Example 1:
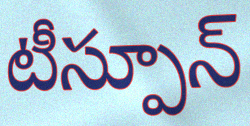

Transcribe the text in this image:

టీస్పూన్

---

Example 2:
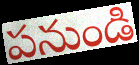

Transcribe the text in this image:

పనుండి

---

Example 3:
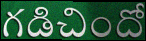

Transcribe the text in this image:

గడిచిందో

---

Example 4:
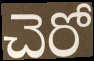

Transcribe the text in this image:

చెరో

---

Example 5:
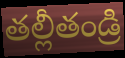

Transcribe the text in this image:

తల్లీతండ్రి